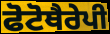
ਫੋਟੋਥੈਰੇਪੀ